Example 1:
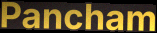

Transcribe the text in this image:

Pancham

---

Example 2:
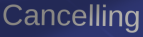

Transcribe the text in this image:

Cancelling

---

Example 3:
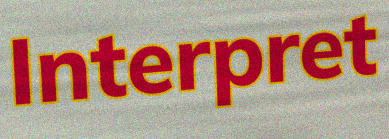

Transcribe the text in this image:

Interpret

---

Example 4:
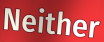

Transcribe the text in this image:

Neither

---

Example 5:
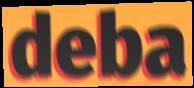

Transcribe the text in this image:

deba